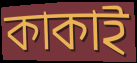
কাকাই